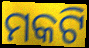
ମକଟି